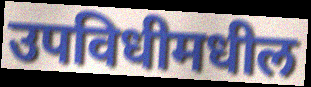
उपविधीमधील